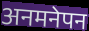
अनमनेपन